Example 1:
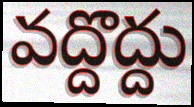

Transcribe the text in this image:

వద్దొద్దు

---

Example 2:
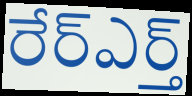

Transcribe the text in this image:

రేర్ఎర్త్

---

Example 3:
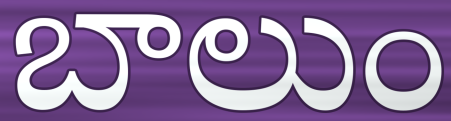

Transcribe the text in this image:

బాలుం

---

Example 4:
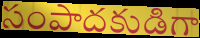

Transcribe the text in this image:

సంపాదకుడిగా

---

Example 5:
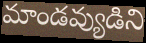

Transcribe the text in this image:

మాండవ్యుడిని